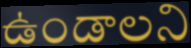
ఉండాలని